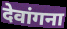
देवांगना